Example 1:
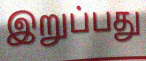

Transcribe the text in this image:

இறுப்பது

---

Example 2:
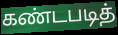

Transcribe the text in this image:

கண்டபடித்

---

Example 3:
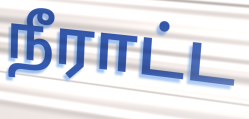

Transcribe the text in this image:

நீராட்ட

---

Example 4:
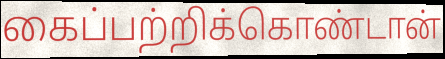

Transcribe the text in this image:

கைப்பற்றிக்கொண்டான்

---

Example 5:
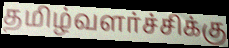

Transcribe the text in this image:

தமிழ்வளர்ச்சிக்கு